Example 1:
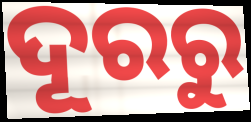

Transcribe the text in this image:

ଦୂରରୁ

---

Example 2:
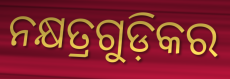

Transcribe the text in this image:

ନକ୍ଷତ୍ରଗୁଡ଼ିକର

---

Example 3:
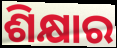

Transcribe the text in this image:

ଶିକ୍ଷାର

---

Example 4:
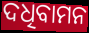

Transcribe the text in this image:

ଦଧିବାମନ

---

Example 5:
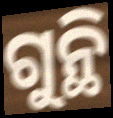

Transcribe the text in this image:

ଗୁନ୍ଥି